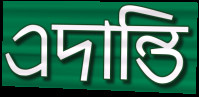
এদান্তি